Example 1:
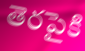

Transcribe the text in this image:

తెరపైకి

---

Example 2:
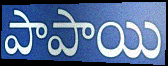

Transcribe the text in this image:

పాపాయి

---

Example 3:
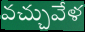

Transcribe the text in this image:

వచ్చువేళ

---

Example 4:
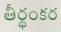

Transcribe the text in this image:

తీర్థంకర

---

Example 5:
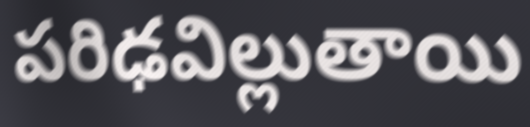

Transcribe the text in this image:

పరిఢవిల్లుతాయి